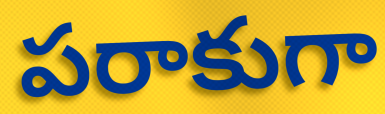
పరాకుగా